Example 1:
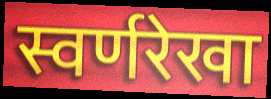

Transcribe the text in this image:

स्वर्णरेखा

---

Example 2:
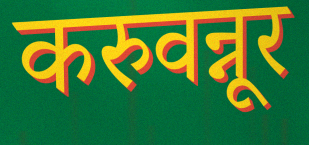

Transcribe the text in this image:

करुवन्नूर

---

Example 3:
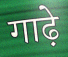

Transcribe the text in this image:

गाढ़े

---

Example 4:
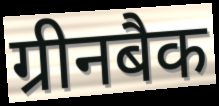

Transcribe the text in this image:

ग्रीनबैक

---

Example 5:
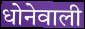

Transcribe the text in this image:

धोनेवाली